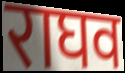
राघव